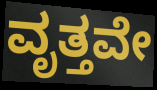
ವೃತ್ತವೇ